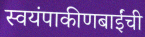
स्वयंपाकीणबाईंची